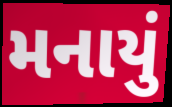
મનાયું